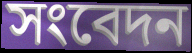
সংবেদন